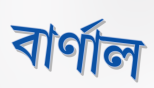
বাৰ্ণাল